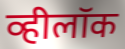
व्हीलॉक